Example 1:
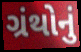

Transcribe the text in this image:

ગ્રંથોનું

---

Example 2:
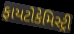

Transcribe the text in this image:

ફાયટોકેમિસ્ટ્રી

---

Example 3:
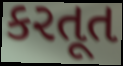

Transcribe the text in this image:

કરતૂત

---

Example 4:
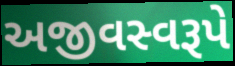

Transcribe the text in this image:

અજીવસ્વરૂપે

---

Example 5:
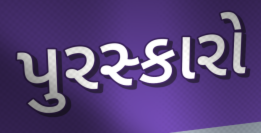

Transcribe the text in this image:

પુરસ્કારો